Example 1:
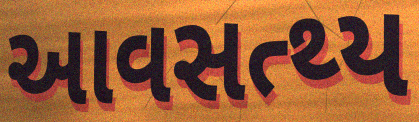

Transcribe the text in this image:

આવસત્થ્ય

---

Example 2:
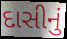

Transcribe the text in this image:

દાસીનું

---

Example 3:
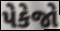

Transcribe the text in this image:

પેકેજો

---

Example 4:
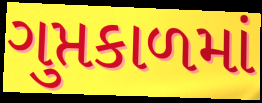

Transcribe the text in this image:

ગુપ્તકાળમાં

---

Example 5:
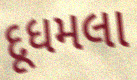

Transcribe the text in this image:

દૂધમલા